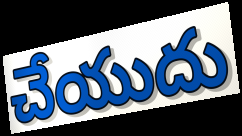
చేయుదు